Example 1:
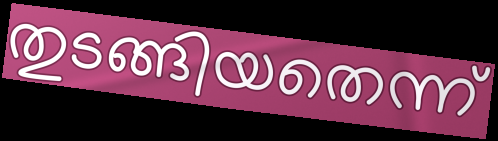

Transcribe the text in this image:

തുടങ്ങിയതെന്ന്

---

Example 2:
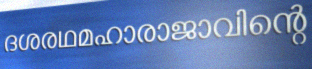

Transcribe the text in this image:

ദശരഥമഹാരാജാവിന്റെ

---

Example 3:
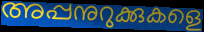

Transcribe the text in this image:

അപ്പനുറുക്കുകളെ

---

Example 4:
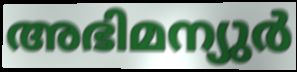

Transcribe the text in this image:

അഭിമന്യുർ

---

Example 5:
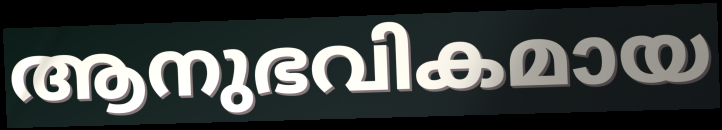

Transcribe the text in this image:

ആനുഭവികമായ